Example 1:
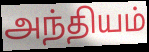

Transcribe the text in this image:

அந்தியம்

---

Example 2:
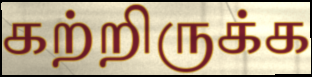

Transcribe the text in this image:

கற்றிருக்க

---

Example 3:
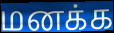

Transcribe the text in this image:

மனக்க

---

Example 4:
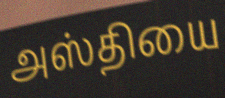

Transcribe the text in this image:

அஸ்தியை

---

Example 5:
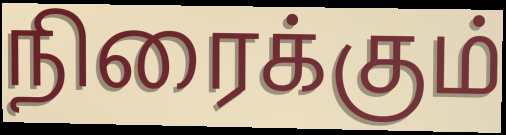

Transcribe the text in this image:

நிரைக்கும்